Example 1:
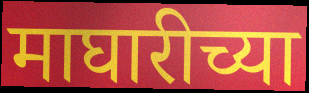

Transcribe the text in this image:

माघारीच्या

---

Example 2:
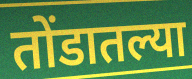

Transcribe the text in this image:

तोंडातल्या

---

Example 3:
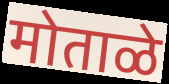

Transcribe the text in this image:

मोताळे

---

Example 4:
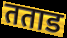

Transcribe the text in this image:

तताड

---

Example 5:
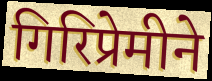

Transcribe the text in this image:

गिरिप्रेमीने